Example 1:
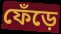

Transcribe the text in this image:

ফেঁড়ে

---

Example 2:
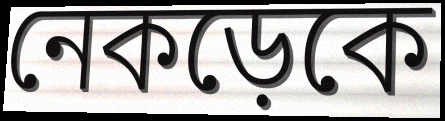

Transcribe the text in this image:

নেকড়েকে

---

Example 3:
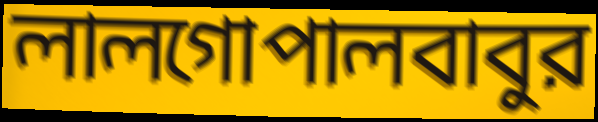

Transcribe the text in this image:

লালগোপালবাবুর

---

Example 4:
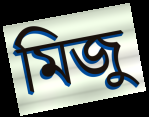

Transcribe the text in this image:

মিজু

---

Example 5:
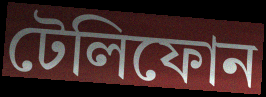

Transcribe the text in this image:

টেলিফোন